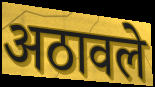
अठावले